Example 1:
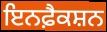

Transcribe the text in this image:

ਇਨਫ਼ੈਕਸ਼ਨ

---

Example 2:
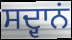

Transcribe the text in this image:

ਸਦ੍ਦਾਨਂ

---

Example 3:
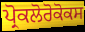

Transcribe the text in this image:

ਪ੍ਰੋਕਲੋਰੋਕੋਕਸ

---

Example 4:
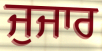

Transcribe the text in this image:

ਜੁਜਾਰ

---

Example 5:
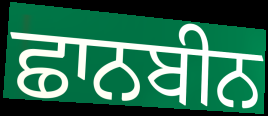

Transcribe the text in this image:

ਛਾਨਬੀਨ